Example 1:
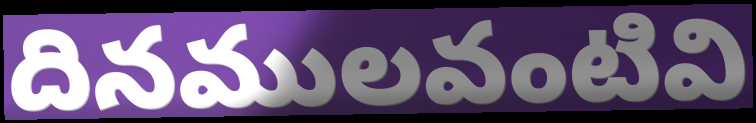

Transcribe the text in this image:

దినములవంటివి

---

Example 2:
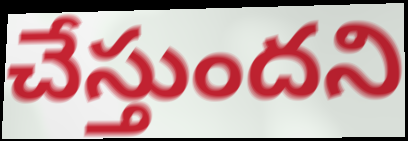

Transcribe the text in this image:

చేస్తుందని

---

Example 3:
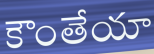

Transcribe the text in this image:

కౌంతేయా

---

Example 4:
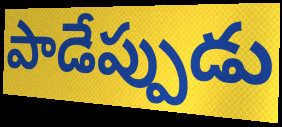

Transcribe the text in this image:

పాడేప్పుడు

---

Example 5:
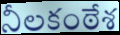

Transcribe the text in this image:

నీలకంఠేశ